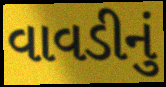
વાવડીનું